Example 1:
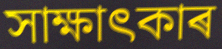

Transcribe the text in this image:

সাক্ষাৎকাৰ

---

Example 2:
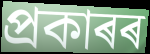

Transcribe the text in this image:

প্ৰকাৰৰ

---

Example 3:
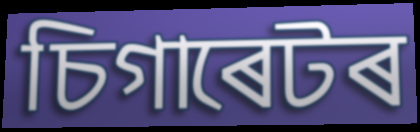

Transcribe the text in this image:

চিগাৰেটৰ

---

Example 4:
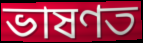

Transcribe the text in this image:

ভাষণত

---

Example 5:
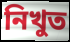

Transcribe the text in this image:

নিখুত